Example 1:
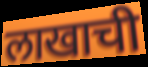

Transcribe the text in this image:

लाखाची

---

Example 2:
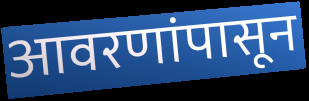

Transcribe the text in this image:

आवरणांपासून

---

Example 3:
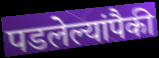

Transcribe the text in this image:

पडलेल्यांपैकी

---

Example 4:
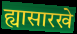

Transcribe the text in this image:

ह्यासारखे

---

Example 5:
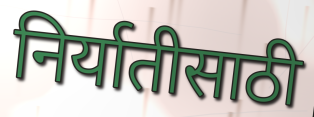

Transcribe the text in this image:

निर्यातीसाठी